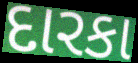
દારકા